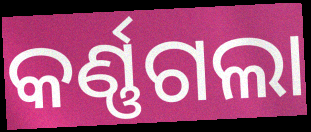
କର୍ଣ୍ଣଗଲା